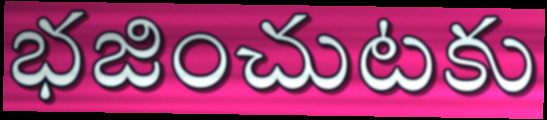
భజించుటకు